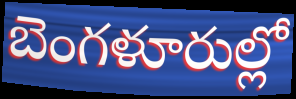
బెంగళూరుల్లో